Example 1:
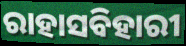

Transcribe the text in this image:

ରାହାସବିହାରୀ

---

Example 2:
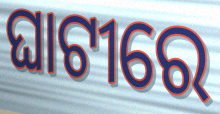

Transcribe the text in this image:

ଘାଟୀରେ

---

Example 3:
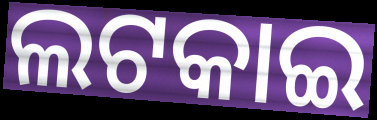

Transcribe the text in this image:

ଲଟକାଇ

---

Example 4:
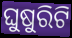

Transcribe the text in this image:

ଘୁଷୁରିଟି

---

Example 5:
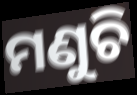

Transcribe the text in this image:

ମଣୁଚି